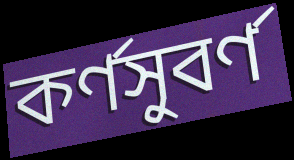
কর্ণসুবর্ণ